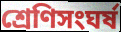
শ্রেণিসংঘর্ষ